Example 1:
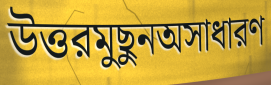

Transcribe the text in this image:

উত্তরমুছুনঅসাধারণ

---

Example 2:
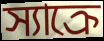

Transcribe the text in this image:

স্যাক্রে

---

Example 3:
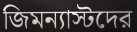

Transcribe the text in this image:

জিমন্যাস্টদের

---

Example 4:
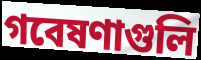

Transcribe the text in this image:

গবেষণাগুলি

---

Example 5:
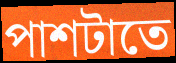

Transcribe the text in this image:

পাশটাতে